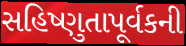
સહિષ્ણુતાપૂર્વકની